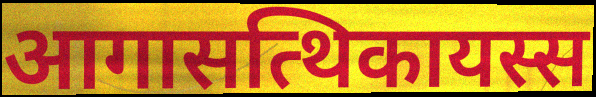
आगासत्थिकायस्स